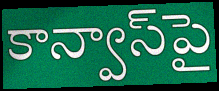
కాన్వాస్‌పై